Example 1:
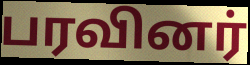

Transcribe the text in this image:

பரவினர்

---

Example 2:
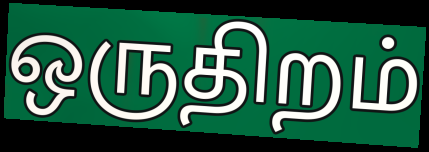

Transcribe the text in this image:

ஒருதிறம்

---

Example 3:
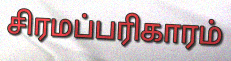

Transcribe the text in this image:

சிரமப்பரிகாரம்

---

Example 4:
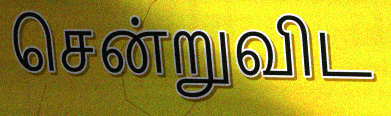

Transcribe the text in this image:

சென்றுவிட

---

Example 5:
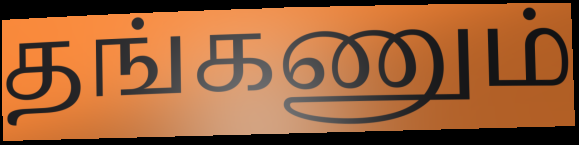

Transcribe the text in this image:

தங்கணும்